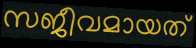
സജീവമായത്